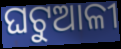
ଘଟୁଆଳୀ